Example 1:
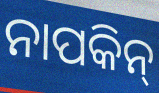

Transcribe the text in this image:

ନାପକିନ୍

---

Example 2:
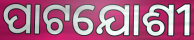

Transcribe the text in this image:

ପାଟଯୋଶୀ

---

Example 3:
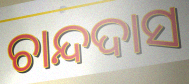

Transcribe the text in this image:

ଚାନ୍ଦଦାସ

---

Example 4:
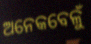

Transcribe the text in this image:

ଅନେକବେଳୁଁ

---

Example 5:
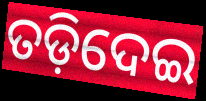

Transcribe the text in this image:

ତଡ଼ିଦେଇ